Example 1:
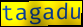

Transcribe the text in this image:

tagadu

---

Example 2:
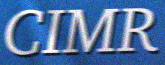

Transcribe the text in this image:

CIMR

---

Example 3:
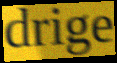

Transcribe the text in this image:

drige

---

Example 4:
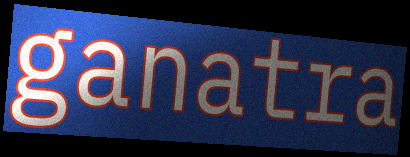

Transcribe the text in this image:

ganatra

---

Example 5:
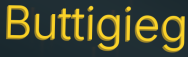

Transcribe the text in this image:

Buttigieg